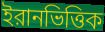
ইরানভিত্তিক